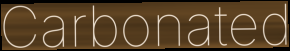
Carbonated